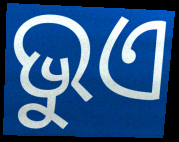
ଭୁଏ